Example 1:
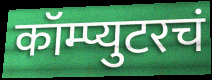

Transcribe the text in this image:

कॉम्प्युटरचं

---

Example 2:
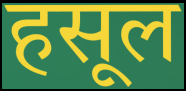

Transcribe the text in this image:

हसूल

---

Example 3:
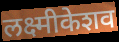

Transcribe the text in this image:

लक्ष्मीकेशव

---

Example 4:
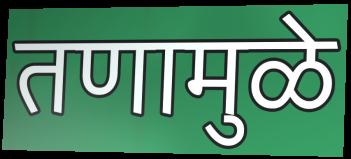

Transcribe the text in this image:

तणामुळे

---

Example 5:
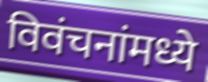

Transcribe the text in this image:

विवंचनांमध्ये